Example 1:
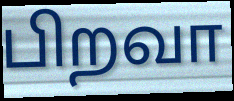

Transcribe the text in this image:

பிறவா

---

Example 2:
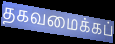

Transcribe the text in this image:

தகவமைக்கப்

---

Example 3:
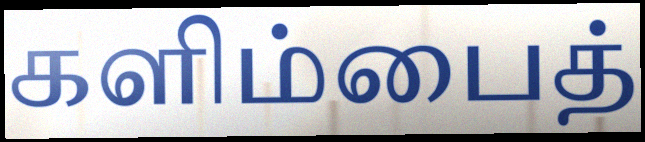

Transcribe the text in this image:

களிம்பைத்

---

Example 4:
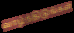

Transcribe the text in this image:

வாழ்ந்திடுங்கள்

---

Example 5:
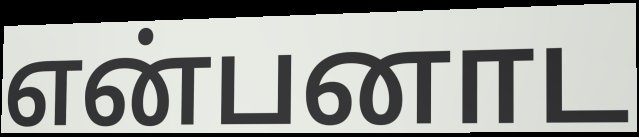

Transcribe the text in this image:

என்பனாட